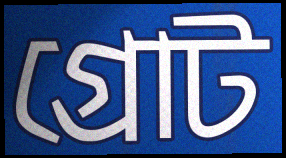
গ্রোট